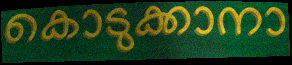
കൊടുക്കാനാ